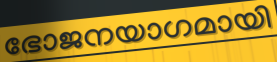
ഭോജനയാഗമായി